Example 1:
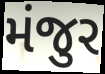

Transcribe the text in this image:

મંજુર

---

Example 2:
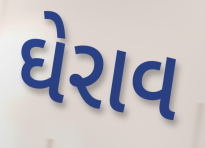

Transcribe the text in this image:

ઘેરાવ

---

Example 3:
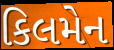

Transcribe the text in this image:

કિલમેન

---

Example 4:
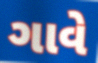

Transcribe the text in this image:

ગાવે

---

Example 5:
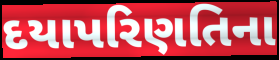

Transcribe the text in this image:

દયાપરિણતિના